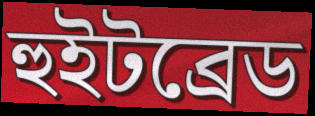
হুইটব্রেড